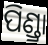
ପିଣ୍ଡ୍ରା